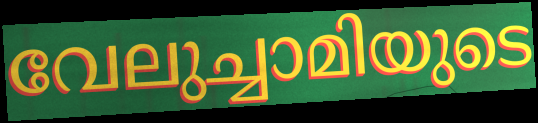
വേലുച്ചാമിയുടെ